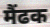
मैंढक